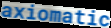
axiomatic